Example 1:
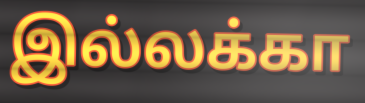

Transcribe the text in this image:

இல்லக்கா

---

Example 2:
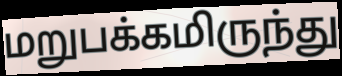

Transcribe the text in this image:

மறுபக்கமிருந்து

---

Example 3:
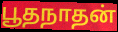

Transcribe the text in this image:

பூதநாதன்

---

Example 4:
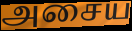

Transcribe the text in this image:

அசைய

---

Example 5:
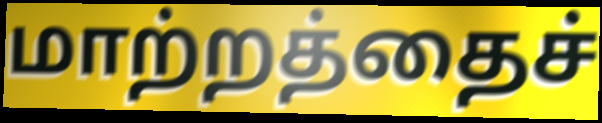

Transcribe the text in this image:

மாற்றத்தைச்